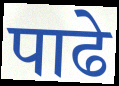
पाढे